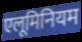
एलूमिनियम